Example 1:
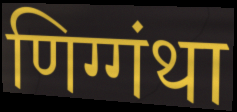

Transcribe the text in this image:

णिग्गंथा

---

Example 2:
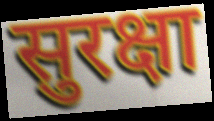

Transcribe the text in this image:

सुरक्षा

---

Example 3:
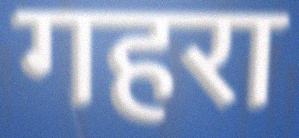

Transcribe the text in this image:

गहरा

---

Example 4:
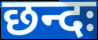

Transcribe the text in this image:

छन्दः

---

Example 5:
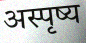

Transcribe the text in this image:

अस्पृष्य